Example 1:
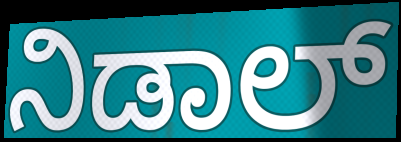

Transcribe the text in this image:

ನಿಡಾಲ್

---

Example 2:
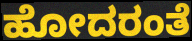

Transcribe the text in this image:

ಹೋದರಂತೆ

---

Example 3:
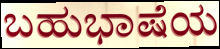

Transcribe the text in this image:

ಬಹುಭಾಷೆಯ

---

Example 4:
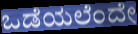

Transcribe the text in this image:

ಒಡೆಯಲೆಂದೇ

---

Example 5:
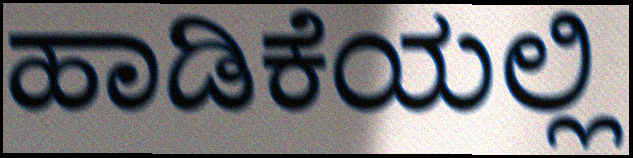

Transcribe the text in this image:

ಹಾಡಿಕೆಯಲ್ಲಿ